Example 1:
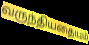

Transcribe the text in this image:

வருந்தியதையும்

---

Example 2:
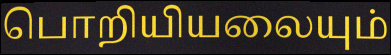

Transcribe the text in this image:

பொறியியலையும்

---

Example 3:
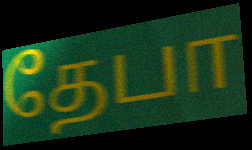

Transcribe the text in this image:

தேபா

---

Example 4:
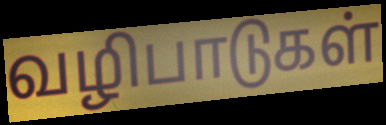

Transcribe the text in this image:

வழிபாடுகள்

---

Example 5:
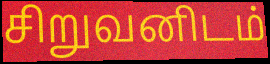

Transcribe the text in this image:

சிறுவனிடம்